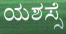
ಯಶಸ್ಸೆ